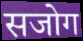
सजोग